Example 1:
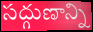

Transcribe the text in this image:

సద్గుణాన్ని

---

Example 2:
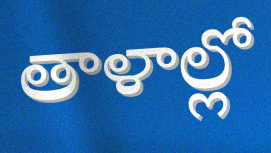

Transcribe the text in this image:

తాళాల్లో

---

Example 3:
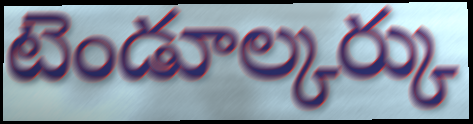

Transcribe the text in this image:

టెండూల్కర్కు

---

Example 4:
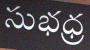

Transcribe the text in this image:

సుభధ్ర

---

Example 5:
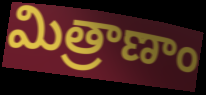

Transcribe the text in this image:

మిత్రాణాం